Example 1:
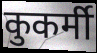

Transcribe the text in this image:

कुकर्मी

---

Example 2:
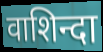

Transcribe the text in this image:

वाशिन्दा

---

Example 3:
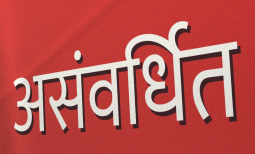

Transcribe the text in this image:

असंवर्धित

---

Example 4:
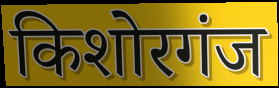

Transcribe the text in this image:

किशोरगंज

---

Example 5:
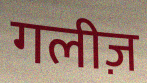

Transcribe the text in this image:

गलीज़